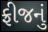
ફ્રીજનું